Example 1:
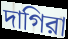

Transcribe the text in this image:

দাগিরা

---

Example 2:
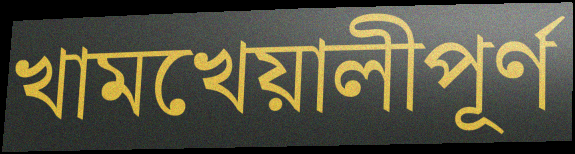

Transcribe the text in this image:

খামখেয়ালীপূর্ণ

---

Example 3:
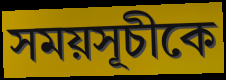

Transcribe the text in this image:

সময়সূচীকে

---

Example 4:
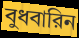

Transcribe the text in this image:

বুধবারিন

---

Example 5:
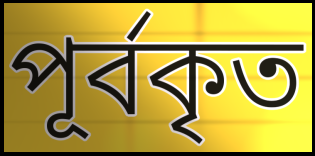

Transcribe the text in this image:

পূর্বকৃত